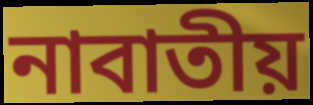
নাবাতীয়